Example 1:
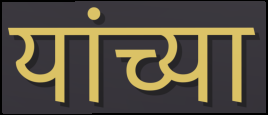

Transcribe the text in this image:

यांच्या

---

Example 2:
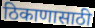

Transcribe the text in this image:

ठिकाणासाठी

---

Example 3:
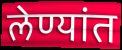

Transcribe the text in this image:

लेण्यांत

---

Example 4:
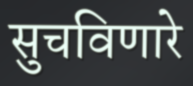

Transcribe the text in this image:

सुचविणारे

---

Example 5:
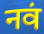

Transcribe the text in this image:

नवं